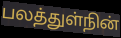
பலத்துள்நின்